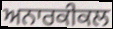
ਅਨਾਰਕੀਕਲ